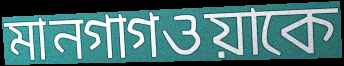
মানগাগওয়াকে